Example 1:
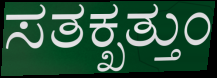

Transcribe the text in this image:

ಸತಕ್ಖತ್ತುಂ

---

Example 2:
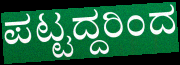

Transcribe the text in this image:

ಪಟ್ಟದ್ದರಿಂದ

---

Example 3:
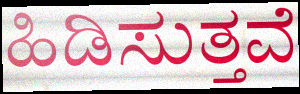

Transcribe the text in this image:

ಹಿಡಿಸುತ್ತವೆ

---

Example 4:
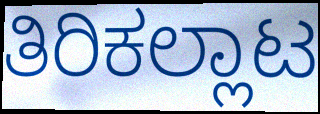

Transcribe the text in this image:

ತಿರಿಕಲ್ಲಾಟ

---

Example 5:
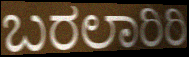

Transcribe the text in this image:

ಬರಲಾರಿರಿ